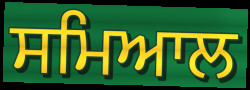
ਸਮਿਆਲ